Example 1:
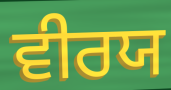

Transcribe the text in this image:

ਵੀਰਯ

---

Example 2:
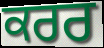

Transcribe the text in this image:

ਕਰਰ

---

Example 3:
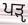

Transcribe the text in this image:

ਪੜੵ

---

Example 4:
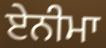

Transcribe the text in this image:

ਏਨੀਮਾ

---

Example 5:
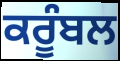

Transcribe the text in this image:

ਕਰੂੰਬਲ